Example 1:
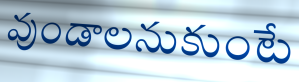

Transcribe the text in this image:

వుండాలనుకుంటే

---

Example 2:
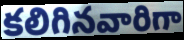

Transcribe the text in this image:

కలిగినవారిగా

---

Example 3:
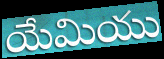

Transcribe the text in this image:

యేమియు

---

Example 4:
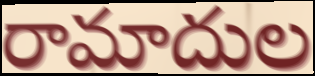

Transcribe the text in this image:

రామాదుల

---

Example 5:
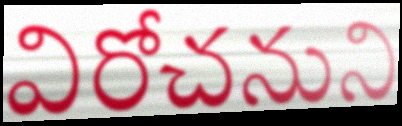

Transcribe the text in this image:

విరోచనుని